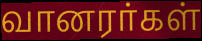
வானரர்கள்